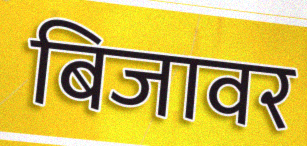
बिजावर